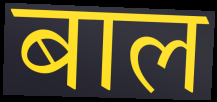
बाल